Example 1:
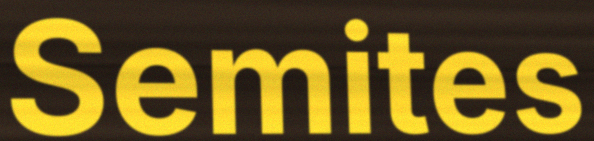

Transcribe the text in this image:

Semites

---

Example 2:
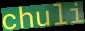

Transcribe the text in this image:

chuli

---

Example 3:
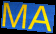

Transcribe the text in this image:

MA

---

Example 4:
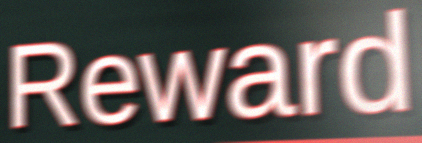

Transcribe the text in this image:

Reward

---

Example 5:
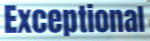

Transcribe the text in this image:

Exceptional